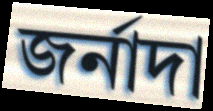
জর্নাদা